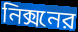
নিক্সনের